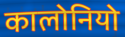
कालोनियो